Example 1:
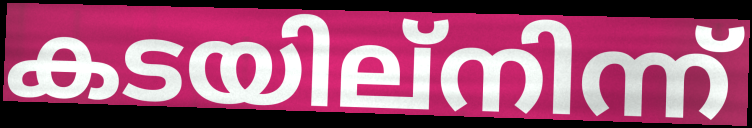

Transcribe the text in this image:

കടയില്നിന്ന്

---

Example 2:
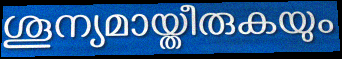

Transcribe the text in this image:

ശൂന്യമായ്തീരുകയും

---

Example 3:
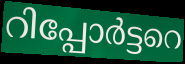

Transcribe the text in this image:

റിപ്പോർട്ടറെ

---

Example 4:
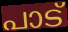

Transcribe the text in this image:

പാട്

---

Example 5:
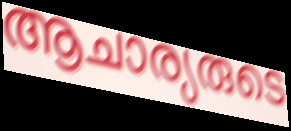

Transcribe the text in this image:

ആചാര്യരുടെ